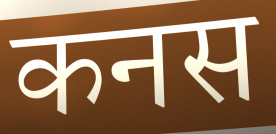
कनस